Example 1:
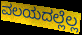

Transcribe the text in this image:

ವಲಯದಲ್ಲೆಲ್ಲ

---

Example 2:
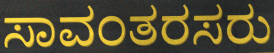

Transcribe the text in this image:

ಸಾವಂತರಸರು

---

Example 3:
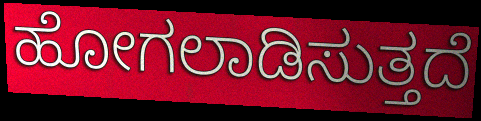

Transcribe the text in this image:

ಹೋಗಲಾಡಿಸುತ್ತದೆ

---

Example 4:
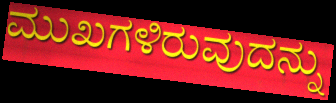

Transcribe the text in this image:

ಮುಖಗಳಿರುವುದನ್ನು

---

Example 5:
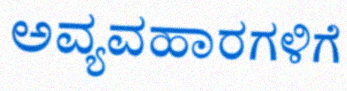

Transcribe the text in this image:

ಅವ್ಯವಹಾರಗಳಿಗೆ